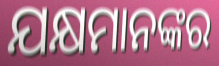
ଯକ୍ଷମାନଙ୍କର